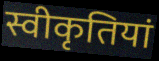
स्वीकृतियां